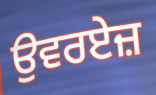
ਉਵਰਏਜ਼